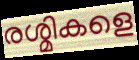
രശ്മികളെ